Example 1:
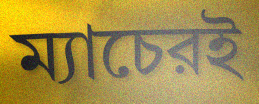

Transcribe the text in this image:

ম্যাচেরই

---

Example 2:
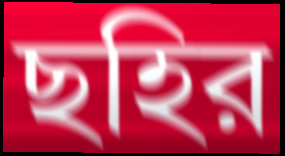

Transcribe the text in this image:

ছহির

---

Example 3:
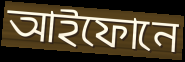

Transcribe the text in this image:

আইফোনে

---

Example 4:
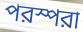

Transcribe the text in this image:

পরস্পরা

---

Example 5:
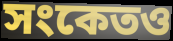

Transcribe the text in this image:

সংকেতও